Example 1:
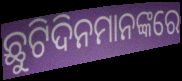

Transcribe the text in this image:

ଛୁଟିଦିନମାନଙ୍କରେ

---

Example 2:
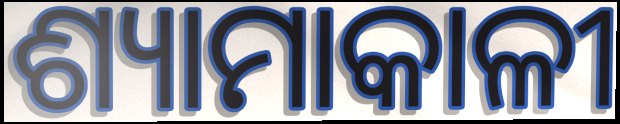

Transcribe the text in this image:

ଶ୍ୟାମାକାଳୀ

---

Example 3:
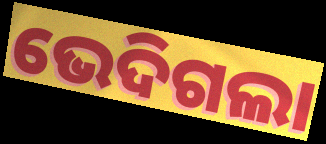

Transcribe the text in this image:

ଭେଦିଗଲା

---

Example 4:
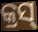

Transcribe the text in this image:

କ୍ରସ୍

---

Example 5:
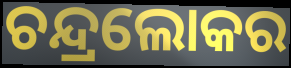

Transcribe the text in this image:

ଚନ୍ଦ୍ରଲୋକର